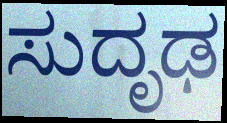
ಸುದೃಢ